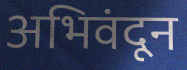
अभिवंदून